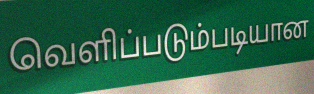
வெளிப்படும்படியான